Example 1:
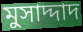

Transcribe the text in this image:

মুসাদ্দাদ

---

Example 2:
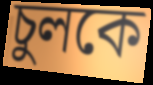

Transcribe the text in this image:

চুলকে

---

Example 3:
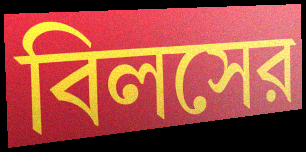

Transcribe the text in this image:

বিলসের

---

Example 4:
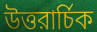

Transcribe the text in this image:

উত্তরার্চিক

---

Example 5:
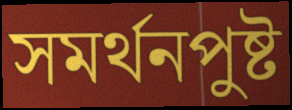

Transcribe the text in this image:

সমর্থনপুষ্ট